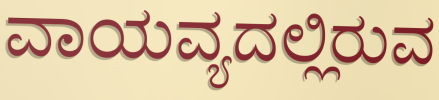
ವಾಯವ್ಯದಲ್ಲಿರುವ